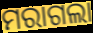
ମରାଗଲା